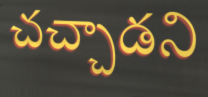
చచ్చాడని